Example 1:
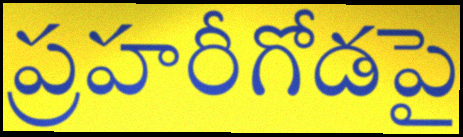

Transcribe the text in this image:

ప్రహరీగోడపై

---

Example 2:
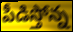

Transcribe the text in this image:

పీడిస్తోన్న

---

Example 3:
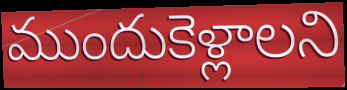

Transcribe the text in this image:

ముందుకెళ్లాలని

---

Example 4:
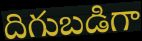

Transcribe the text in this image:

దిగుబడిగా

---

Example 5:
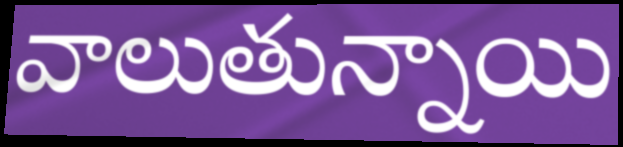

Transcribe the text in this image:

వాలుతున్నాయి